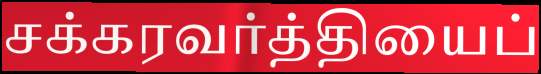
சக்கரவர்த்தியைப்